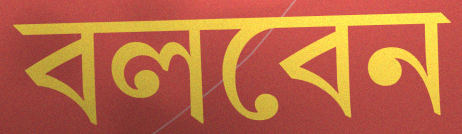
বলবেন